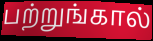
பற்றுங்கால்